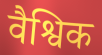
वैश्विक